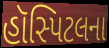
હૉસ્પિટલના